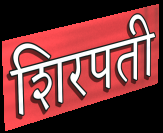
शिरपती